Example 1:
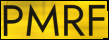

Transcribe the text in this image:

PMRF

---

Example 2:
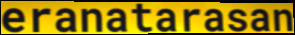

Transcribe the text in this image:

eranatarasan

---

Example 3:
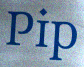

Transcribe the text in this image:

Pip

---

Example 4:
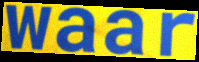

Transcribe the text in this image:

waar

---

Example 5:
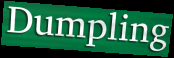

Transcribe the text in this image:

Dumpling